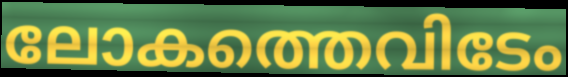
ലോകത്തെവിടേം